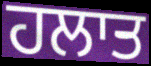
ਹਲਾਤ